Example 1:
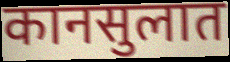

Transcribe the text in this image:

कानसुलात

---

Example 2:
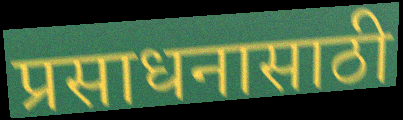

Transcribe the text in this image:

प्रसाधनासाठी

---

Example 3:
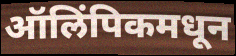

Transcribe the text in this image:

ऑलिंपिकमधून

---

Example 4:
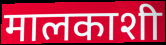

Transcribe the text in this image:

मालकाशी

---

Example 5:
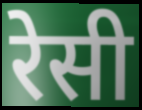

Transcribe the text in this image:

रेसी